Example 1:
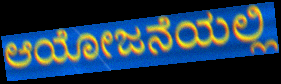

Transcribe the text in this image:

ಆಯೋಜನೆಯಲ್ಲಿ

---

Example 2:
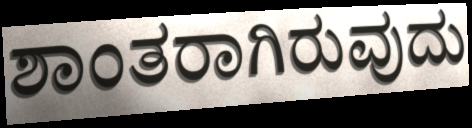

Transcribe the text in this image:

ಶಾಂತರಾಗಿರುವುದು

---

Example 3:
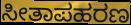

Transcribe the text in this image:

ಸೀತಾಪಹರಣ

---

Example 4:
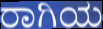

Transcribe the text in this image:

ರಾಗಿಯ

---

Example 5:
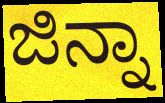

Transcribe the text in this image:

ಜಿನ್ನಾ